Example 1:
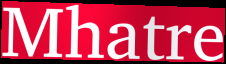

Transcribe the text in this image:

Mhatre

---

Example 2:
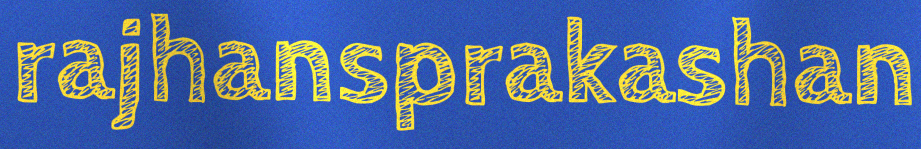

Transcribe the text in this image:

rajhansprakashan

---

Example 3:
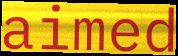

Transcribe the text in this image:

aimed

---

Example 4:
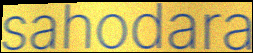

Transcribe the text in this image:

sahodara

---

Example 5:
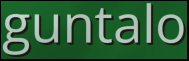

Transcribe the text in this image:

guntalo